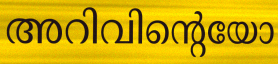
അറിവിന്റെയോ